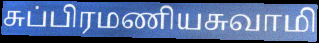
சுப்பிரமணியசுவாமி